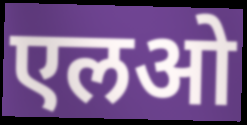
एलओ